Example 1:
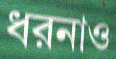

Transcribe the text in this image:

ধরনাও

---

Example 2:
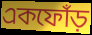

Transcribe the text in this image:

একফোঁড়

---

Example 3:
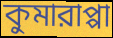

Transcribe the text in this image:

কুমারাপ্পা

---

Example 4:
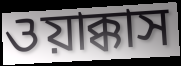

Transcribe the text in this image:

ওয়াক্কাস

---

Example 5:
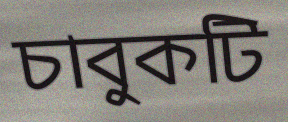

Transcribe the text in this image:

চাবুকটি